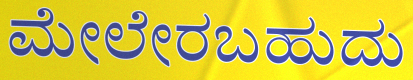
ಮೇಲೇರಬಹುದು